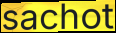
sachot